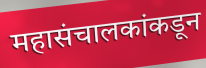
महासंचालकांकडून